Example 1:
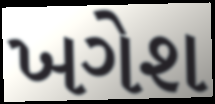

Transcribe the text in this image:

ખગેશ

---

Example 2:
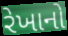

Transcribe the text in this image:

રેખાનો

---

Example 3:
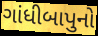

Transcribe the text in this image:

ગાંધીબાપુનો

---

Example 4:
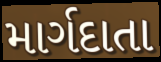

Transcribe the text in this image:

માર્ગદાતા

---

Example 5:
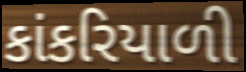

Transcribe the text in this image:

કાંકરિયાળી